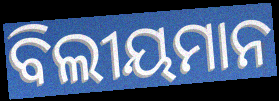
ବିଲୀୟମାନ